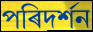
পৰিদৰ্শন